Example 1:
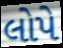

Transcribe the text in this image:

લોપે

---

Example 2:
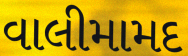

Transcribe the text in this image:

વાલીમામદ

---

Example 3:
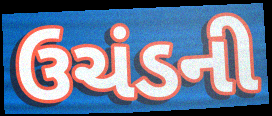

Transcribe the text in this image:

ઉચંડની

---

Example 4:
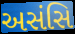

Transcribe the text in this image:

અસંસિ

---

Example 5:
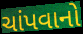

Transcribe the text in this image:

ચાંપવાનો